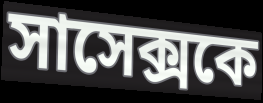
সাসেক্সকে